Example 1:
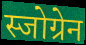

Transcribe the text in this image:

स्जोग्रेन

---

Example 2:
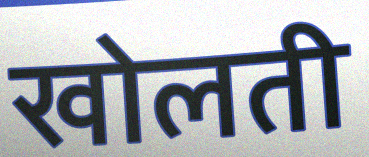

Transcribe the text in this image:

खोलती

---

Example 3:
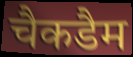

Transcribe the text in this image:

चैकडैम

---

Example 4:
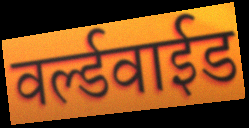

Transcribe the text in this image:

वर्ल्डवाईड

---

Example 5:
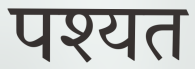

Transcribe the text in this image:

पश्यत